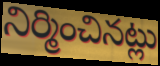
నిర్మించినట్లు